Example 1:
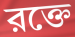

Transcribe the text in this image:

রক্তে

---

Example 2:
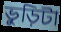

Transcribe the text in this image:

ভুড়িটা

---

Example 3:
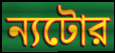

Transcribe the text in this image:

ন্যটোর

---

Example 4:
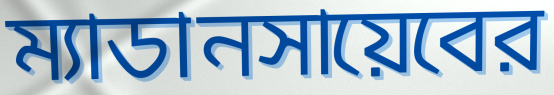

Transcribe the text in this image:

ম্যাডানসায়েবের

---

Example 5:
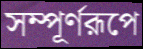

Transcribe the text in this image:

সম্পূর্ণরূপে